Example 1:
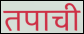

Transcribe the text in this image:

तपाची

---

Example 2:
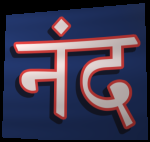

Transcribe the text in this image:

नंद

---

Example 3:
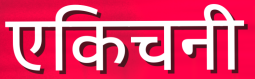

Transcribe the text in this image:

एकिचनी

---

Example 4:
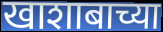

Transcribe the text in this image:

खाशाबाच्या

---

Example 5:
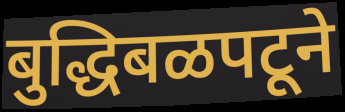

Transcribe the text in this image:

बुद्धिबळपटूने